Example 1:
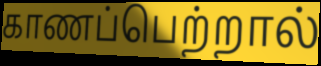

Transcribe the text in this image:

காணப்பெற்றால்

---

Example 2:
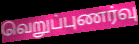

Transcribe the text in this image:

வெறுப்புணர்வு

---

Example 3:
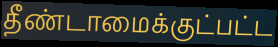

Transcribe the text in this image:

தீண்டாமைக்குட்பட்ட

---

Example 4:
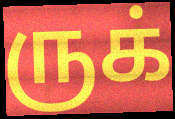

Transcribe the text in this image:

ருக்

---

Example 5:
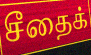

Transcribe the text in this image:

சீதைக்